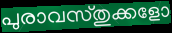
പുരാവസ്തുക്കളോ